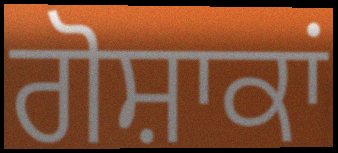
ਗੋਸ਼ਾਕਾਂ